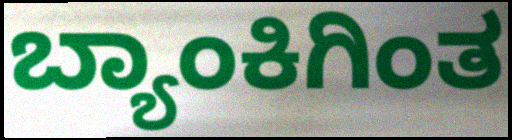
ಬ್ಯಾಂಕಿಗಿಂತ